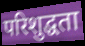
परिशुद्धता